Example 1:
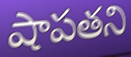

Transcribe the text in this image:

షాపతని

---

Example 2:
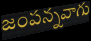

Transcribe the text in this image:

జంపన్నవాగు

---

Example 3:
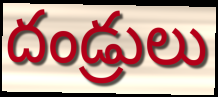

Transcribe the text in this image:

దండ్రులు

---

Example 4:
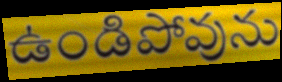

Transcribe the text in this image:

ఉండిపోవును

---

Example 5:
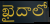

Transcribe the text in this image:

ఖైదాలో